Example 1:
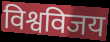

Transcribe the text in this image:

विश्वविजय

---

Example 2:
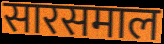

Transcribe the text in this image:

सारसमाल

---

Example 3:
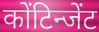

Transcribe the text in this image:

कोंटिन्जेंट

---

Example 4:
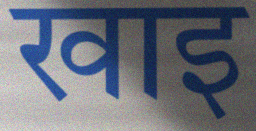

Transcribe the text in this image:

खाइ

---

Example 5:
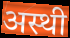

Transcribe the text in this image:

अस्थी